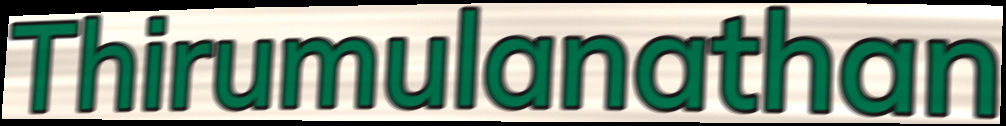
Thirumulanathan